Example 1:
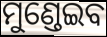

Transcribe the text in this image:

ମୁଣ୍ଡେଇବ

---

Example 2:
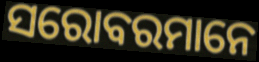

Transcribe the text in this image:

ସରୋବରମାନେ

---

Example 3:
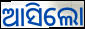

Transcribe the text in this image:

ଆସିଲୋ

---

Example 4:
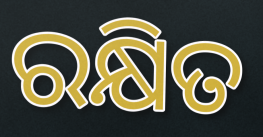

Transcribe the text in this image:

ରକ୍ଷିତ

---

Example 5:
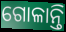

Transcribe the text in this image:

ଗୋଳାନ୍ତି